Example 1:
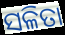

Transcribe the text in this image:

ସଳିତା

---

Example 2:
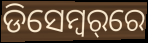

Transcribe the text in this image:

ଡିସେମ୍ବର୍‌ରେ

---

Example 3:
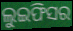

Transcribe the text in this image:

ଲୁଇଫିସର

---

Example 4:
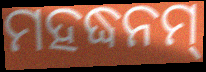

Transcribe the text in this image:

ମହଦ୍ଧନମ୍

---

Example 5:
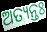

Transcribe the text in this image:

ଅତ୍ୟନ୍ତଃ